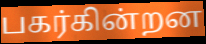
பகர்கின்றன